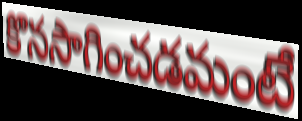
కొనసాగించడమంటే